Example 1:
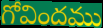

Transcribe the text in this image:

గోవిందము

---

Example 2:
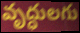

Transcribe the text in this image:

వృద్ధులగు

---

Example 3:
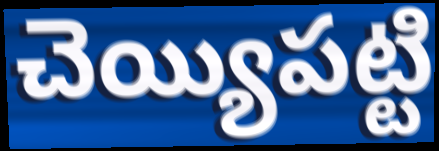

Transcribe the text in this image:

చెయ్యిపట్టి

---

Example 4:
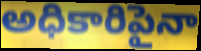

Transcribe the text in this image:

అధికారిపైనా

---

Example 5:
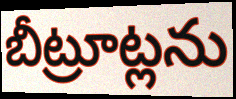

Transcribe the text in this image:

బీట్రూట్లను